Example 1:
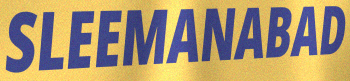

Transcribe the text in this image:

SLEEMANABAD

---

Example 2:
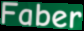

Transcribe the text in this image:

Faber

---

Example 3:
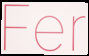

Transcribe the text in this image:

Fer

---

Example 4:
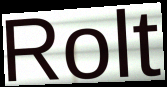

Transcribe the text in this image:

Rolt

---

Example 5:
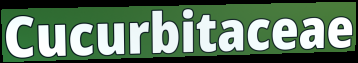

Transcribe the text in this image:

Cucurbitaceae